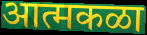
आत्मकळा